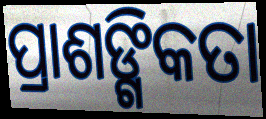
ପ୍ରାଶଙ୍ଗିକତା